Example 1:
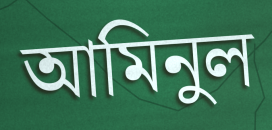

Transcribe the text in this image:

আমিনুল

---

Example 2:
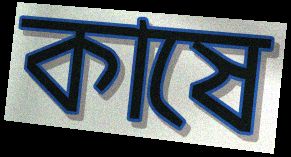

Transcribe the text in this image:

কাষে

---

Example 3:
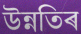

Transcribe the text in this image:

উন্নতিৰ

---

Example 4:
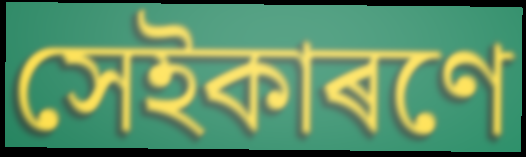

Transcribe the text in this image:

সেইকাৰণে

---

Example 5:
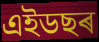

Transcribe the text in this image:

এইডছৰ